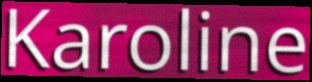
Karoline